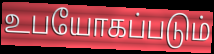
உபயோகப்படும்